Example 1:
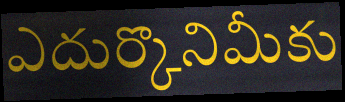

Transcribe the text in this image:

ఎదుర్కొనిమీకు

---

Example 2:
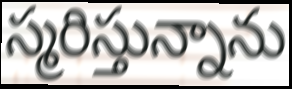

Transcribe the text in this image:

స్మరిస్తున్నాను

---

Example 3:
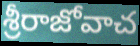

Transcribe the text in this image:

శ్రీరాజోవాచ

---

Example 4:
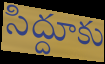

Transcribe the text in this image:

సిద్దూకు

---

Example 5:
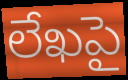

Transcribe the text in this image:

లేఖపై